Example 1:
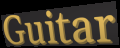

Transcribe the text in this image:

Guitar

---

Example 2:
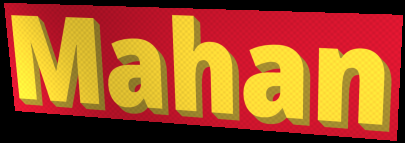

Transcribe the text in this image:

Mahan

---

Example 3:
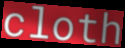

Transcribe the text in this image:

cloth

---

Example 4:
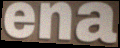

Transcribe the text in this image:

ena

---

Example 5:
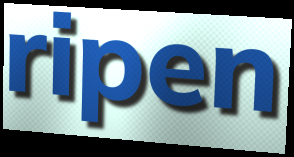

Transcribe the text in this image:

ripen